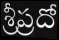
శ్రీప్రదో